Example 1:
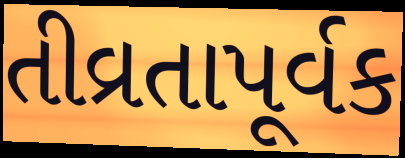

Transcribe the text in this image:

તીવ્રતાપૂર્વક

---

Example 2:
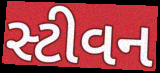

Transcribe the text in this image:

સ્ટીવન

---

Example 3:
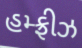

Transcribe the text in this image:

હમ્ફ્રીઝ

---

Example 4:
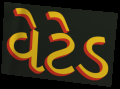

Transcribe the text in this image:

વેટેડ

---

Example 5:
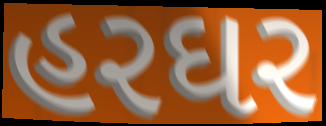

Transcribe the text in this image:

હરઘર